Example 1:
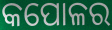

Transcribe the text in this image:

କପୋଳର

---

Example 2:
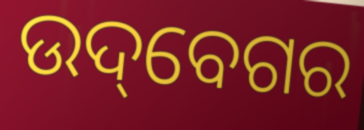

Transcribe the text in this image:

ଉଦ୍‌ବେଗର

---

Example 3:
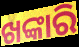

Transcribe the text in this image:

ଖଙ୍କାରି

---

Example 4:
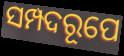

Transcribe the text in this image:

ସମ୍ପଦରୂପେ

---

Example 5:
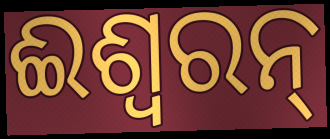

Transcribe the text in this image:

ଈଶ୍ୱରନ୍